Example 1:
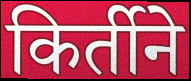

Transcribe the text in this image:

किर्तीने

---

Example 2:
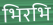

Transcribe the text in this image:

भिरभि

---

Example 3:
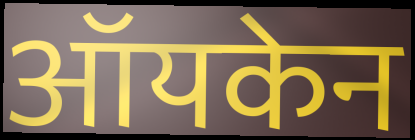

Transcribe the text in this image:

ऑयकेन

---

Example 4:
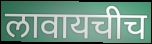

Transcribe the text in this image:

लावायचीच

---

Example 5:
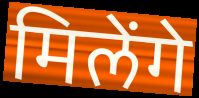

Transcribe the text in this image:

मिलेंगे